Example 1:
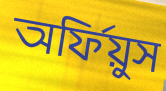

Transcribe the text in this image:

অর্ফিয়ুস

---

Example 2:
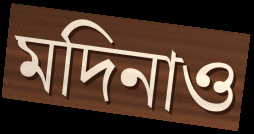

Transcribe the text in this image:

মদিনাও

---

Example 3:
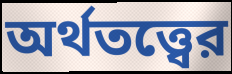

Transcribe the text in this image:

অর্থতত্ত্বের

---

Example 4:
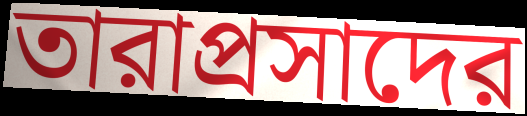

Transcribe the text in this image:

তারাপ্রসাদের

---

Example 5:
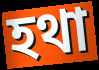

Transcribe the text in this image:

হথা